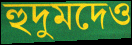
হুদুমদেও